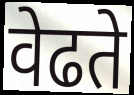
वेढते